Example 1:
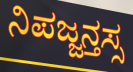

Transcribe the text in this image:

ನಿಪಜ್ಜನ್ತಸ್ಸ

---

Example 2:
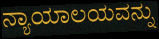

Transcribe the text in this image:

ನ್ಯಾಯಾಲಯವನ್ನು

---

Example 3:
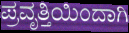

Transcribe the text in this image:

ಪ್ರವೃತ್ತಿಯಿಂದಾಗಿ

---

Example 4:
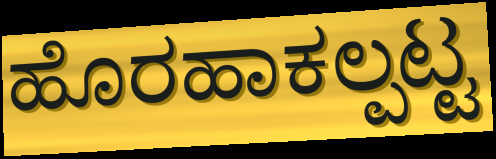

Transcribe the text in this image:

ಹೊರಹಾಕಲ್ಪಟ್ಟ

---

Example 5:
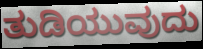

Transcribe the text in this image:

ತುಡಿಯುವುದು